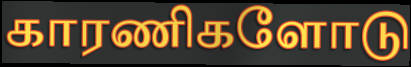
காரணிகளோடு